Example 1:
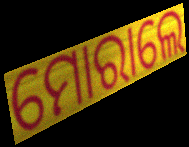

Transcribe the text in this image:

ମୋରାଲେ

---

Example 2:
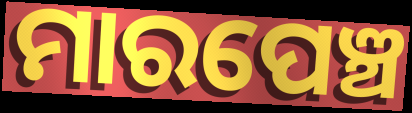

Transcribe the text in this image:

ମାରପେଞ୍ଚ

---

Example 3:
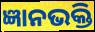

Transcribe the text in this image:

ଜ୍ଞାନଭକ୍ତି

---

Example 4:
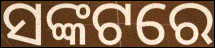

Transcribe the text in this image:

ସଙ୍କଟରେ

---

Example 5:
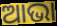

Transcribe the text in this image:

ଆଭା